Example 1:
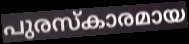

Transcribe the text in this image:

പുരസ്കാരമായ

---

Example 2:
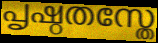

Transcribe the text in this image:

പൃഷ്ഠതസ്തേ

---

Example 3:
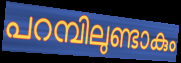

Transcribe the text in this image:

പറമ്പിലുണ്ടാകും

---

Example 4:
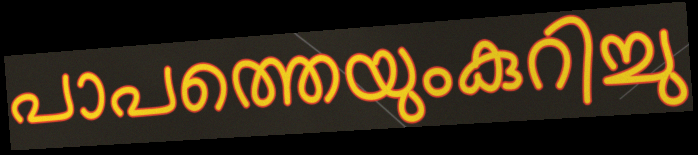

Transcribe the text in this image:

പാപത്തെയുംകുറിച്ചു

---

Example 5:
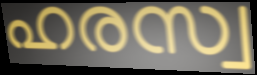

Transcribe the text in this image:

ഹരസ്വ